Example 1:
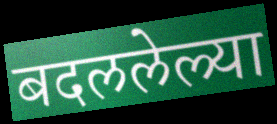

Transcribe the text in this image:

बदललेल्या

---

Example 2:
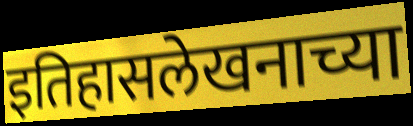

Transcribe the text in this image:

इतिहासलेखनाच्या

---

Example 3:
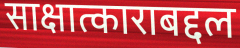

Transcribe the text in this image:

साक्षात्काराबद्दल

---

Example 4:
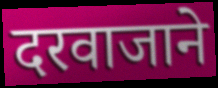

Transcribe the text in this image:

दरवाजाने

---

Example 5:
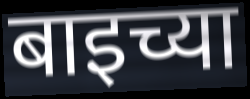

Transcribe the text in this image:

बाइच्या